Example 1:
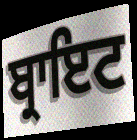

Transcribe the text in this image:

ਬ੍ਰਾਇਟ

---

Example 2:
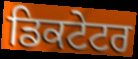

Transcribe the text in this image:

ਡਿਕਟੇਟਰ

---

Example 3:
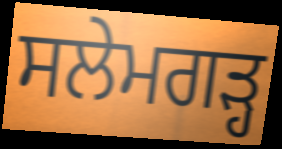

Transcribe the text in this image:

ਸਲੇਮਗੜ੍ਹ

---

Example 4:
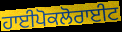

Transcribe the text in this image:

ਹਾਈਪੋਕਲੋਰਾਈਟ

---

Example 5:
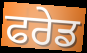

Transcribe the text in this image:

ਫਰੇਡ